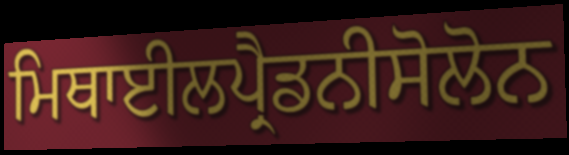
ਮਿਥਾਈਲਪ੍ਰੈਡਨੀਸੋਲੋਨ